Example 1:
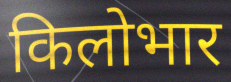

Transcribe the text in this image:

किलोभार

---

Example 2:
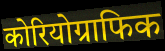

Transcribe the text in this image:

कोरियोग्राफिक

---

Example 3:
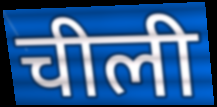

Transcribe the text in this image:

चीली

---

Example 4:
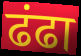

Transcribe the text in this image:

ढंढा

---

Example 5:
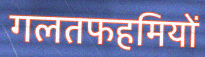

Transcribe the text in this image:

गलतफहमियों